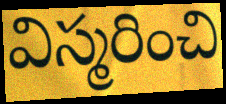
విస్మరించి